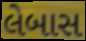
લેબાસ